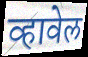
व्हावेल